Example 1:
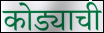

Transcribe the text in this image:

कोड्याची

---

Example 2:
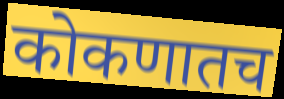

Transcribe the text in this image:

कोकणातच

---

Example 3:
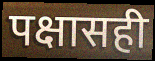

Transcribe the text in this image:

पक्षासही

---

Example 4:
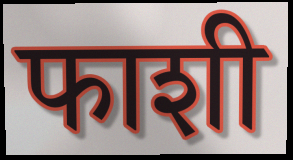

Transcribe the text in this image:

फाशी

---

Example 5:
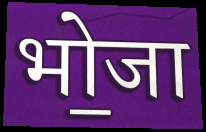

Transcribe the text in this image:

भो॒जा